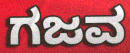
ಗಜವ